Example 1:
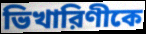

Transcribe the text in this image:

ভিখারিণীকে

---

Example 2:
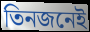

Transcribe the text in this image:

তিনজনেই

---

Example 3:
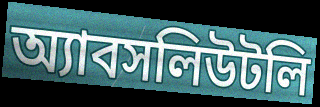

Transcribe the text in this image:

অ্যাবসলিউটলি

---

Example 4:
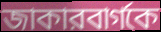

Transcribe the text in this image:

জাকারবার্গকে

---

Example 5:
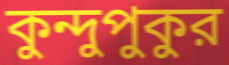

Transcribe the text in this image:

কুন্দুপুকুর